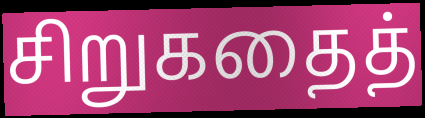
சிறுகதைத்